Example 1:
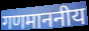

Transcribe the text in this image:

गणमाननीय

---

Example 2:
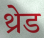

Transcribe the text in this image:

थ्रेड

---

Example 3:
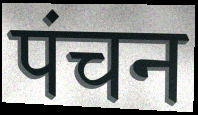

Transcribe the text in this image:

पंचन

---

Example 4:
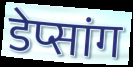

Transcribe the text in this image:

डेप्सांग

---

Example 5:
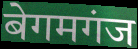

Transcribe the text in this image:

बेगमगंज